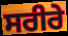
ਸਰੀਰੇ